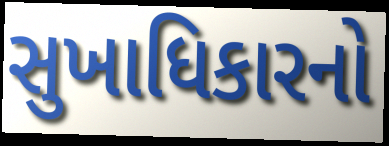
સુખાધિકારનો